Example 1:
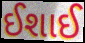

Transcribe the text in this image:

ઈશાઈ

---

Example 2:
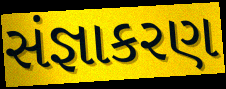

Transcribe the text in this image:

સંજ્ઞાકરણ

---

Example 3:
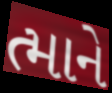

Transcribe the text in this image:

ત્માને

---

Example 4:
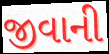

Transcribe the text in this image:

જીવાની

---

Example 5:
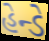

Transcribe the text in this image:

હેન્ડે